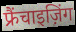
फ्रैंचाइज़िंग